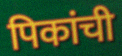
पिकांची